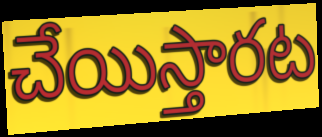
చేయిస్తారట